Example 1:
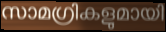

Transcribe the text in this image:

സാമഗ്രികളുമായി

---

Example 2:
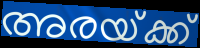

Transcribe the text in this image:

അരയ്‌ക്ക്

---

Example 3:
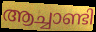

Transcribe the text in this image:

ആച്ചാണ്ടി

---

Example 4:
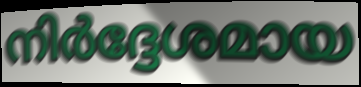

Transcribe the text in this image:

നിർദ്ദേശമായ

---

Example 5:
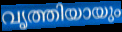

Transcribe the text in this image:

വൃത്തിയായും